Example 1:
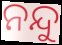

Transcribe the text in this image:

ନନ୍ଦୁ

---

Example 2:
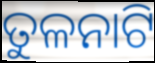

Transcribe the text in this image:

ତୁଳନାଟି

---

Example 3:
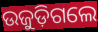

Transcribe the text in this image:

ଉଜୁଡ଼ିଗଲେ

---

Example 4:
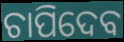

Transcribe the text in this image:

ଚାପିଦେବ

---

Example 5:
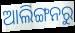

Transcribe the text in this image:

ଆଲିଙ୍ଗନରୁ